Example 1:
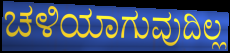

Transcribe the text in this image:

ಚಳಿಯಾಗುವುದಿಲ್ಲ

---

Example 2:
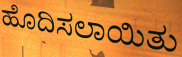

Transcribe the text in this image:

ಹೊದಿಸಲಾಯಿತು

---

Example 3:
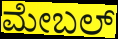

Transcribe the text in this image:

ಮೇಬಲ್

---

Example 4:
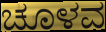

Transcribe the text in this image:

ಚೂಳವ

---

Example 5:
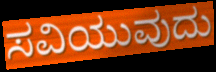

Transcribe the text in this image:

ಸವಿಯುವುದು